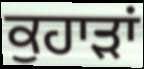
ਕੁਹਾੜਾਂ